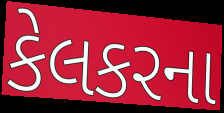
કેલકરના